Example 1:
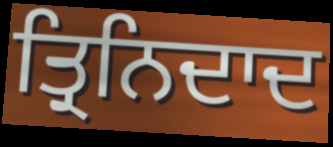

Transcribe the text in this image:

ਤ੍ਰਿਨਿਦਾਦ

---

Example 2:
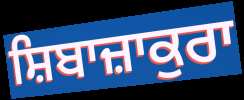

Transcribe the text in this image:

ਸ਼ਿਬਾਜ਼ਾਕੁਰਾ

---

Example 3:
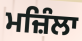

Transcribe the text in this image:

ਮਜ਼ਿੰਲਾ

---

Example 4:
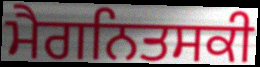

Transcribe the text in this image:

ਮੈਗਨਿਤਸਕੀ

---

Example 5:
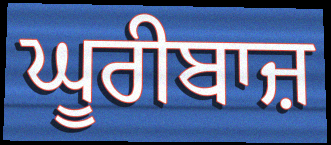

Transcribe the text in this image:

ਘੂਰੀਬਾਜ਼